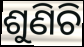
ଶୁଣିଚି